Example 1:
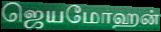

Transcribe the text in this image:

ஜெயமோஹன்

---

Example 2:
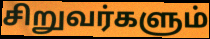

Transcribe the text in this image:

சிறுவர்களும்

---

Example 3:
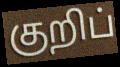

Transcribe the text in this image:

குறிப்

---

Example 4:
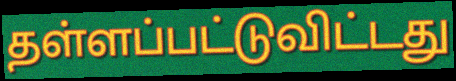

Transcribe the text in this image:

தள்ளப்பட்டுவிட்டது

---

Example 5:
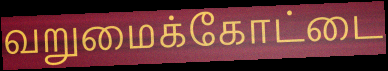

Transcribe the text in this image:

வறுமைக்கோட்டை